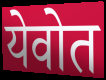
येवोत